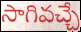
సాగివచ్చే